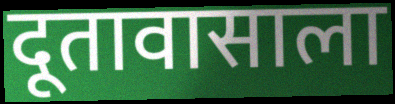
दूतावासाला